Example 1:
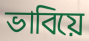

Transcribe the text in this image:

ভাবিয়ে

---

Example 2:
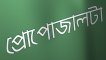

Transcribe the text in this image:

প্রোপোজালটা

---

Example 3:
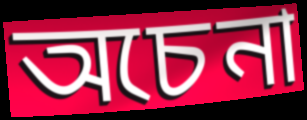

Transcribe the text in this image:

অচেনা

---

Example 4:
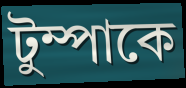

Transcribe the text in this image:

টুম্পাকে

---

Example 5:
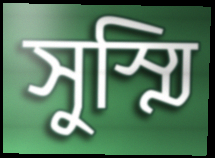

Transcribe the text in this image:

সুস্মি